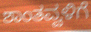
ಶಾಂತವ್ವಳಿಗೆ